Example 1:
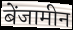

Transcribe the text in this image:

बेंजामीन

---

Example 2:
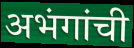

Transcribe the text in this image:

अभंगांची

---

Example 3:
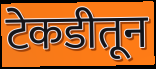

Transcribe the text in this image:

टेकडीतून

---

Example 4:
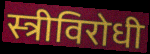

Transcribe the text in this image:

स्त्रीविरोधी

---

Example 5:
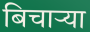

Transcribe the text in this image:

बिचाऱ्या